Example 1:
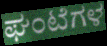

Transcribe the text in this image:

ಘಂಟೆಗಳ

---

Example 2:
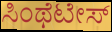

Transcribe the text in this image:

ಸಿಂಥೆಟೇಸ್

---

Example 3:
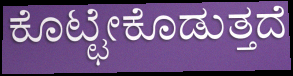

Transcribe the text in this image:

ಕೊಟ್ಟೇಕೊಡುತ್ತದೆ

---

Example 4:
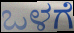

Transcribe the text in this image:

ಒಳಗೆ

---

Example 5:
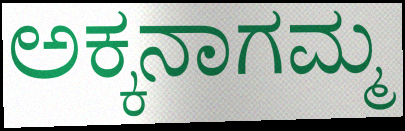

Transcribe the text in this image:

ಅಕ್ಕನಾಗಮ್ಮ